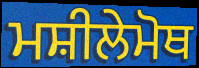
ਮਸ਼ੀਲੇਮੋਥ